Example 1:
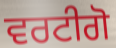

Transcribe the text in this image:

ਵਰਟੀਗੋ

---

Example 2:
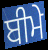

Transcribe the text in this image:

ਬੀਮੇ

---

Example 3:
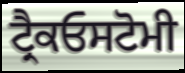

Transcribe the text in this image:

ਟ੍ਰੈਕਓਸਟੋਮੀ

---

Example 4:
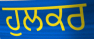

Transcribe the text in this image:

ਹੁਲਕਰ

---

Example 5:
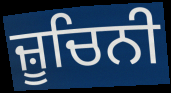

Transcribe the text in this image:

ਜ਼ੂਚਿਨੀ